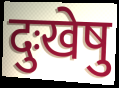
दुःखेषु